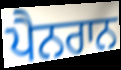
ਪੈਨਰਾਨ